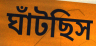
ঘাঁটছিস